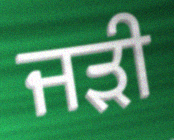
ਜੜੀ